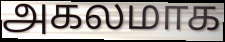
அகலமாக